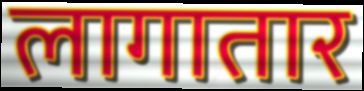
लागातार